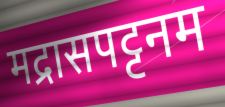
मद्रासपट्टनम